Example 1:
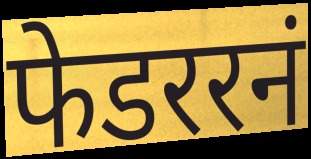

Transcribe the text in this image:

फेडररनं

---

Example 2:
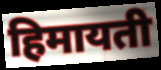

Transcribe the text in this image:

हिमायती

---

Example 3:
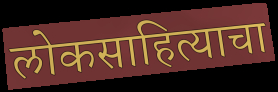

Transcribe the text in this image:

लोकसाहित्याचा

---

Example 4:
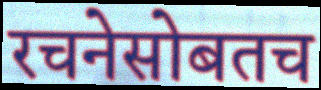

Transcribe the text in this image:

रचनेसोबतच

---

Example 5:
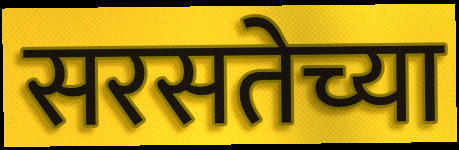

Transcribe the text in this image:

सरसतेच्या